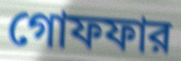
গোফফার